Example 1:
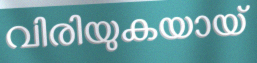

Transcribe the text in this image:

വിരിയുകയായ്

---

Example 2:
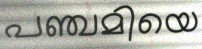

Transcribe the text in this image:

പഞ്ചമിയെ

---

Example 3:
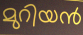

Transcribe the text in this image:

മുറിയൻ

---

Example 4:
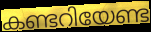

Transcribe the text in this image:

കണ്ടറിയേണ്ട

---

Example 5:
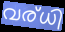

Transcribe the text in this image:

വര്ധി